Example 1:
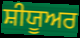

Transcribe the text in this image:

ਸ਼ੀਯੂਅਰ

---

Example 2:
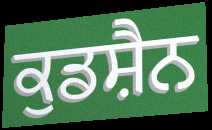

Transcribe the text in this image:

ਕੁਡਸ਼ੈਨ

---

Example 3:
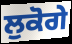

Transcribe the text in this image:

ਲੁਕੋਗੇ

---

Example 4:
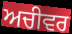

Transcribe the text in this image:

ਅਚੀਵਰ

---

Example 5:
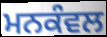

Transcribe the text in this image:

ਮਨਕੰਵਲ